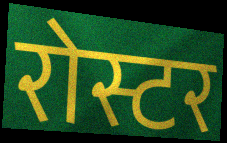
रोस्टर